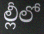
ల్లీలో